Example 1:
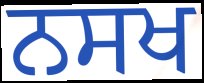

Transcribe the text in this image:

ਨਸਖ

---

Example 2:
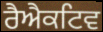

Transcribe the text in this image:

ਰੈਐਕਟਿਵ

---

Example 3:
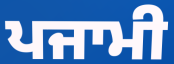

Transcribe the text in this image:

ਪਜਾਮੀ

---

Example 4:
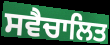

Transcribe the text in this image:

ਸਵੈਚਾਲਿਤ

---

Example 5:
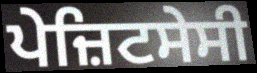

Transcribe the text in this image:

ਪੇਜ਼ਿਟਸੇਸੀ